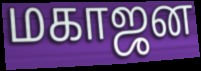
மகாஜன